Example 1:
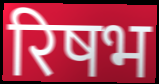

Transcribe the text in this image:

रिषभ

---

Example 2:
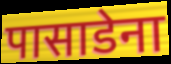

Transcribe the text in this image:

पासाडेना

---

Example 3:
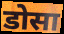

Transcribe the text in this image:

डोसा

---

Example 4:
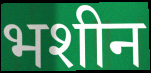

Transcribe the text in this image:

भशीन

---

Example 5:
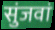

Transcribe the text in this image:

सुंजवां